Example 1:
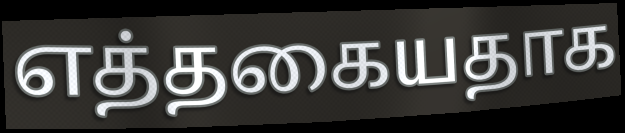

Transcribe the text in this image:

எத்தகையதாக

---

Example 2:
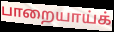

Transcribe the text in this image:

பாறையாய்க்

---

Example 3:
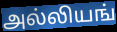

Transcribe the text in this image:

அல்லியங்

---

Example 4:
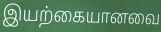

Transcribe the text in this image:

இயற்கையானவை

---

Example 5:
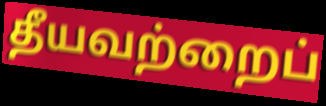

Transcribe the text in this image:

தீயவற்றைப்